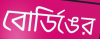
বোর্ডিঙের